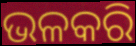
ଭଳକରି